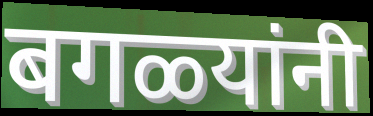
बगळ्यांनी